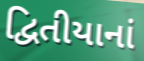
દ્વિતીયાનાં